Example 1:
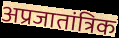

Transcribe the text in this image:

अप्रजातांत्रिक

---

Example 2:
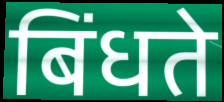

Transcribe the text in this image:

बिंधते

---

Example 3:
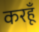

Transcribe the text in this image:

करहूँ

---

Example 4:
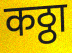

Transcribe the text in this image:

कठ्ठा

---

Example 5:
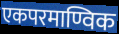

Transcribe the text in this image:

एकपरमाण्विक